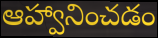
ఆహ్వానించడం